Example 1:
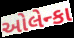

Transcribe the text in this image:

ઓલેન્કા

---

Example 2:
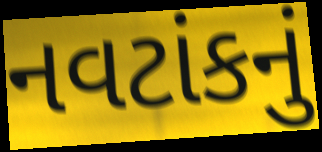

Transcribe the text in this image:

નવટાંકનું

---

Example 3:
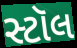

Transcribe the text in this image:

સ્ટૉલ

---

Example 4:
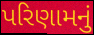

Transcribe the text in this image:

પરિણામનું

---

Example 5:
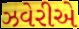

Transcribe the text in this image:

ઝવેરીએ